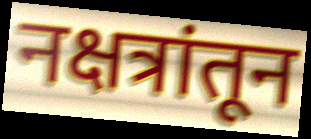
नक्षत्रांतून